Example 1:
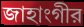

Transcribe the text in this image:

জাহাংগীর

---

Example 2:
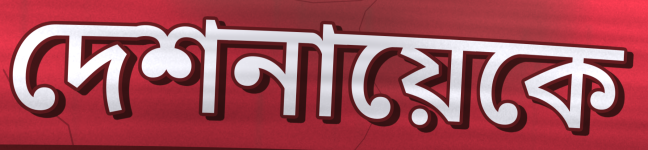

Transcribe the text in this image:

দেশনায়েকে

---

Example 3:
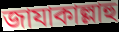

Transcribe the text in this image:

জাযাকাল্লাহু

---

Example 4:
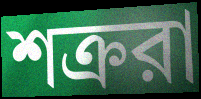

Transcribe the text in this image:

শক্ররা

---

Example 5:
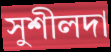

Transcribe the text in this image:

সুশীলদা